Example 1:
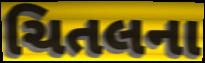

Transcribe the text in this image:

ચિતલના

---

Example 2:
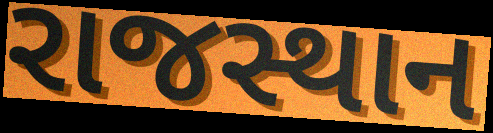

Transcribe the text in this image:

રાજસ્થાન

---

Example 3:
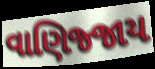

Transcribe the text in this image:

વાણિજ્જાય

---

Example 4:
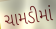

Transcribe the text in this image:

ચામડીમાં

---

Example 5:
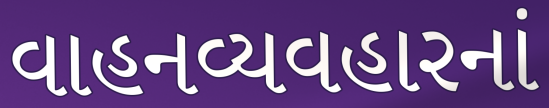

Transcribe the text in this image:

વાહનવ્યવહારનાં